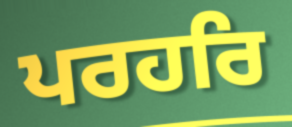
ਪਰਹਰਿ